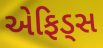
એફિડ્સ